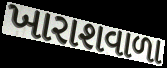
ખારાશવાળા